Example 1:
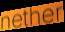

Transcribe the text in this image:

nether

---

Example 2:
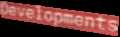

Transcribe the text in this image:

Developments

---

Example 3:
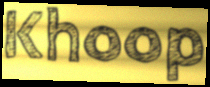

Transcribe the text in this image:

Khoop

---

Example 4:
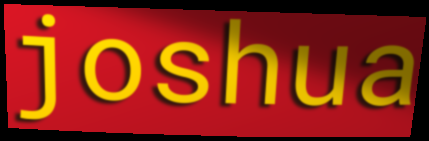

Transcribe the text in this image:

joshua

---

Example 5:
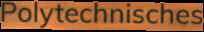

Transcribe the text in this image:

Polytechnisches